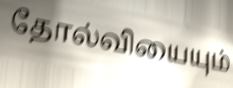
தோல்வியையும்